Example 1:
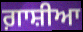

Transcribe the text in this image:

ਗ਼ਾਸ਼ੀਆ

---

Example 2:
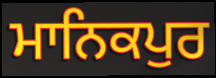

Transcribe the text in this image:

ਮਾਨਿਕਪੁਰ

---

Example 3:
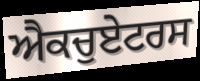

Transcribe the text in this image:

ਐਕਚੁਏਟਰਸ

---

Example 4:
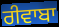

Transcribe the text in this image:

ਰੀਵਾਬਾ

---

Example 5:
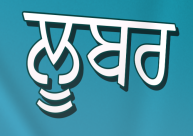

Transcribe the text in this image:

ਲੂਬਰ